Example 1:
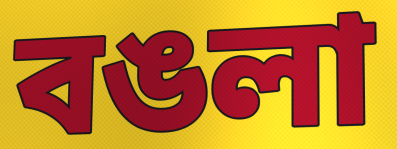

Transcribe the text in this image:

বঙলা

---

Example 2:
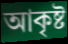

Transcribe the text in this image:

আকৃষ্ট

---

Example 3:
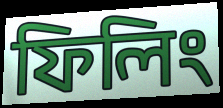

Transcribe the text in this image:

ফিলিং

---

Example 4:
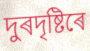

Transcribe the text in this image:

দুৰদৃষ্টিৰে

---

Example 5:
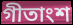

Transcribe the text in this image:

গীতাংশ